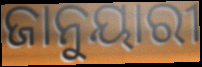
ଜାନୁୟାରୀ